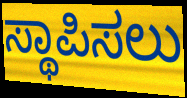
ಸ್ಥಾಪಿಸಲು